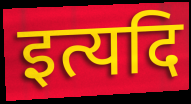
इत्यदि